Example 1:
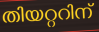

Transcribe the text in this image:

തിയറ്ററിന്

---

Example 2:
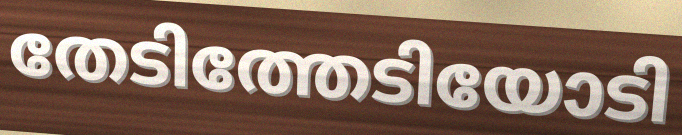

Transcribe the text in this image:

തേടിത്തേടിയോടി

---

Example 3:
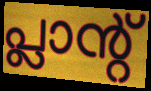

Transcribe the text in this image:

പ്ലാന്റ്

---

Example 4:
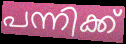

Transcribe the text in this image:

പന്നിക്ക്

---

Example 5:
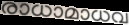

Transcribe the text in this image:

രാധാമാധവ